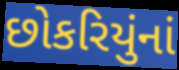
છોકરિયુંનાં